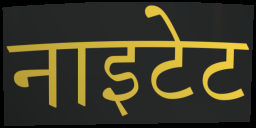
नाइटेट